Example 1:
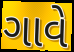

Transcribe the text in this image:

ગાવે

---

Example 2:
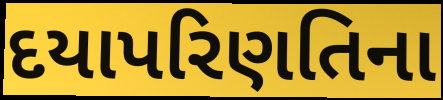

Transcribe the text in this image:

દયાપરિણતિના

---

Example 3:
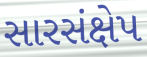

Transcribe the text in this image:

સારસંક્ષેપ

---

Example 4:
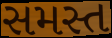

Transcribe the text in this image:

સમસ્ત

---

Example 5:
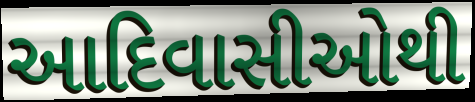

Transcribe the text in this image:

આદિવાસીઓથી